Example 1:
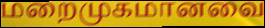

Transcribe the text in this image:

மறைமுகமானவை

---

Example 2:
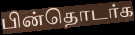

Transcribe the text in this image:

பின்தொடர்க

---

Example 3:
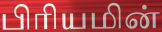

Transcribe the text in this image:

பிரியமின்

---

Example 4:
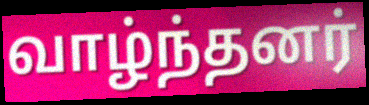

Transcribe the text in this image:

வாழ்ந்தனர்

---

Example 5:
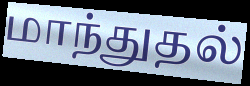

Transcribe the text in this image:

மாந்துதல்